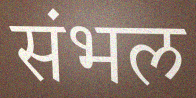
संभल